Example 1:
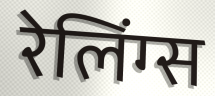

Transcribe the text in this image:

रेलिंग्स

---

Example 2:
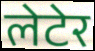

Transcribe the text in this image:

लेटेर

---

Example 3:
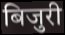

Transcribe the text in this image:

बिजुरी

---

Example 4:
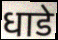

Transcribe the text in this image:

धाडे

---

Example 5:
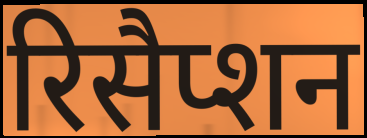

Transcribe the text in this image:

रिसैप्शन